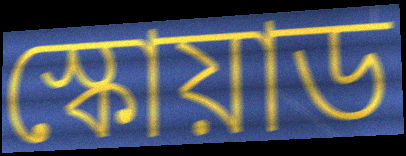
স্কোয়াড